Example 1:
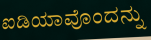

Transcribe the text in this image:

ಐಡಿಯಾವೊಂದನ್ನು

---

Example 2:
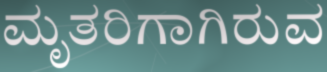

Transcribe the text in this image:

ಮೃತರಿಗಾಗಿರುವ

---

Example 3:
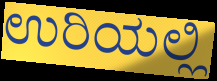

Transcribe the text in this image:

ಉರಿಯಲ್ಲಿ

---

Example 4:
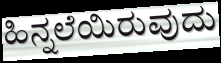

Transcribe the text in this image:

ಹಿನ್ನಲೆಯಿರುವುದು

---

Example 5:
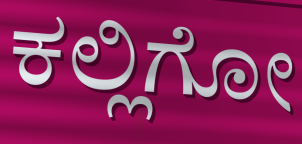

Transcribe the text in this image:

ಕಲ್ಲಿಗೋ